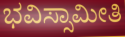
ಭವಿಸ್ಸಾಮೀತಿ